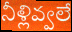
నీళ్లివ్వలే